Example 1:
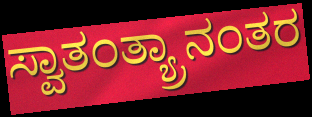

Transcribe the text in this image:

ಸ್ವಾತಂತ್ಯ್ರಾನಂತರ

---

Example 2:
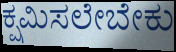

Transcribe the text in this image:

ಕ್ಷಮಿಸಲೇಬೇಕು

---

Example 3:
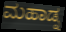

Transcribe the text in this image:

ಮಹಾಡ್ನ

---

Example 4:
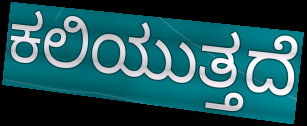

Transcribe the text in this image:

ಕಲಿಯುತ್ತದೆ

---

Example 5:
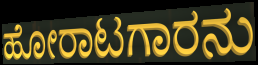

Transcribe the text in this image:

ಹೋರಾಟಗಾರನು